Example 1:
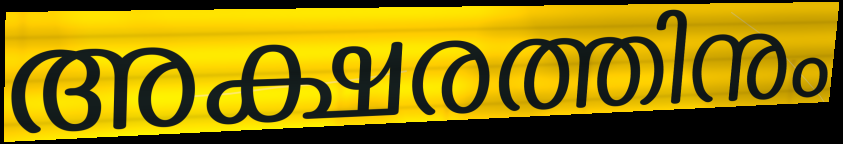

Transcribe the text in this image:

അക്ഷരത്തിനും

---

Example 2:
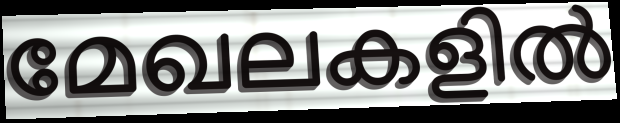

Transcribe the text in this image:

മേഖലകളിൽ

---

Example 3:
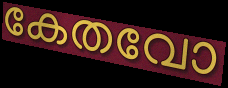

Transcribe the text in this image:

കേതവോ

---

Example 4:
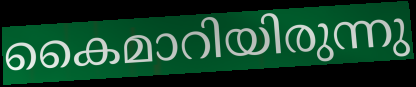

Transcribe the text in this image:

കൈമാറിയിരുന്നു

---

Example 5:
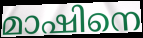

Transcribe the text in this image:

മാഷിനെ